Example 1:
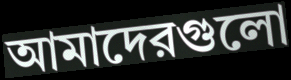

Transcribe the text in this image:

আমাদেরগুলো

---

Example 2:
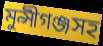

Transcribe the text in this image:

মুন্সীগঞ্জসহ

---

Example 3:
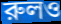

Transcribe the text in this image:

রুলও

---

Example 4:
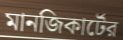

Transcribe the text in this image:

মানজিকার্টের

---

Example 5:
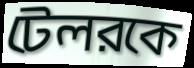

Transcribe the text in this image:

টেলরকে